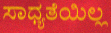
ಸಾಧ್ಯತೆಯಿಲ್ಲ